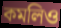
কমলিও